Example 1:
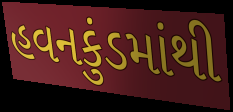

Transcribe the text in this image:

હવનકુંડમાંથી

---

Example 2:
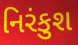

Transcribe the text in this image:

નિરંકુશ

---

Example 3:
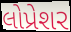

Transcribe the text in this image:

લોપ્રેશર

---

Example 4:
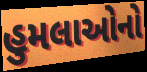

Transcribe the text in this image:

હુમલાઓનો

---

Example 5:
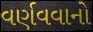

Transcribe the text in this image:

વર્ણવવાનો